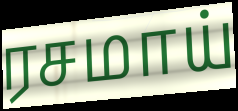
ரசமாய்